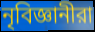
নৃবিজ্ঞানীরা